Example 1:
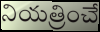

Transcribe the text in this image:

నియత్రించే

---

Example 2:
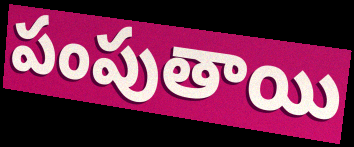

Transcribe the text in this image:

పంపుతాయి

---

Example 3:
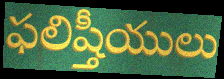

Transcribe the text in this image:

ఫలిష్తీయులు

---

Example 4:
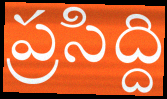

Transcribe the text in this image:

ప్రసిద్ది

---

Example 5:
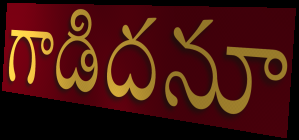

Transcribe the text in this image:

గాడిదనూ